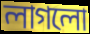
লাগলো